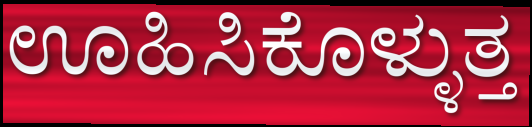
ಊಹಿಸಿಕೊಳ್ಳುತ್ತ